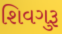
શિવગુરૂ